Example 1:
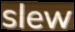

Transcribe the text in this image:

slew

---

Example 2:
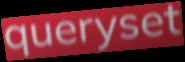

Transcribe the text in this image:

queryset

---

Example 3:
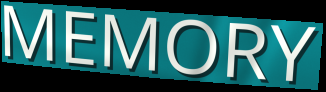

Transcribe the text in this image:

MEMORY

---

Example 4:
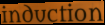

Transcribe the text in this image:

induction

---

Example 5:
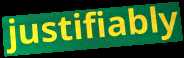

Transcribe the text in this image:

justifiably